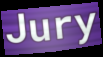
Jury